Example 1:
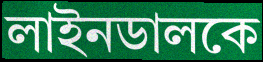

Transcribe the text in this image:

লাইনডালকে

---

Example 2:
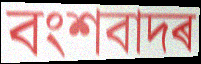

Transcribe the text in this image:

বংশবাদৰ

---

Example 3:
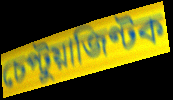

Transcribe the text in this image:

চেপ্টুয়াজিণ্টক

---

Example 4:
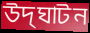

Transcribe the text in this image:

উদ্‌ঘাটন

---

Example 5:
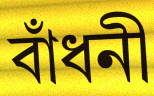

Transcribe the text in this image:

বাঁধনী